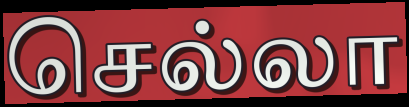
செல்லா